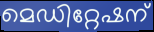
മെഡിറ്റേഷന്